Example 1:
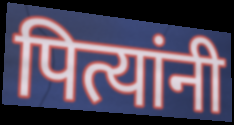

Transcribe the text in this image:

पित्यांनी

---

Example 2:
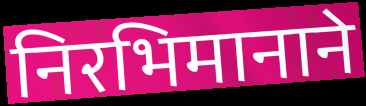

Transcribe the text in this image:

निरभिमानाने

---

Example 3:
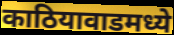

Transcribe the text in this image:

काठियावाडमध्ये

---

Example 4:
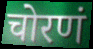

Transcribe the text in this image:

चोरणं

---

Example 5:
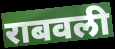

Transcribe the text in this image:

राबवली